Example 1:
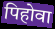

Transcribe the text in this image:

पिहोवा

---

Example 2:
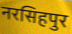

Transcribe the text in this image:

नरसिहपुर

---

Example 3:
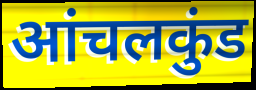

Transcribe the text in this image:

आंचलकुंड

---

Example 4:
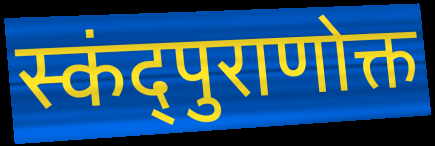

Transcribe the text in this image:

स्कंद्पुराणोक्त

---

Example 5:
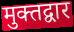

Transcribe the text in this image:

मुक्तद्वार